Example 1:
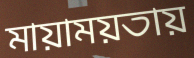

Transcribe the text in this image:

মায়াময়তায়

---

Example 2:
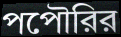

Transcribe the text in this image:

পপৌরির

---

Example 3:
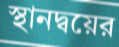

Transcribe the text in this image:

স্থানদ্বয়ের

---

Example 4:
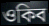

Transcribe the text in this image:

ওকিব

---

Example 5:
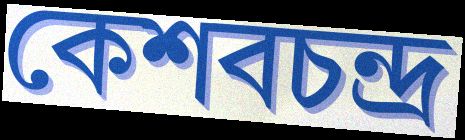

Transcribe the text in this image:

কেশবচন্দ্র